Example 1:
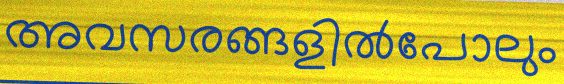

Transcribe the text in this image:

അവസരങ്ങളിൽപോലും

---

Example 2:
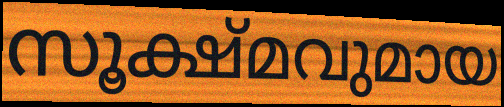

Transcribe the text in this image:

സൂക്ഷ്മവുമായ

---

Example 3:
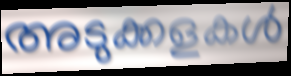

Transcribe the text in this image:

അടുക്കളകൾ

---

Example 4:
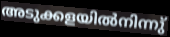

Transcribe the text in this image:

അടുക്കളയിൽനിന്നു്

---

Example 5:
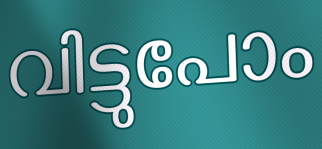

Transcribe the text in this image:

വിട്ടുപോം